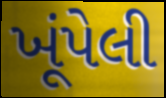
ખૂંપેલી